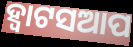
ହ୍ୱାଟସଆପ